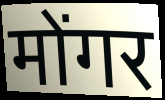
मोंगर